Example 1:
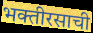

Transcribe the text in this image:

भक्तीरसाची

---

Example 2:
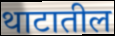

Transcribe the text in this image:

थाटातील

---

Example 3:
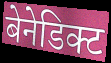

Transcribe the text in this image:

बेनेडिक्ट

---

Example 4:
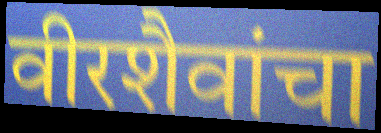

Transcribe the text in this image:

वीरशैवांचा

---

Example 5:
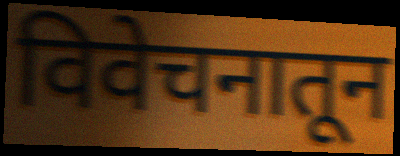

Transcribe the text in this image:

विवेचनातून